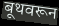
बूथवरून